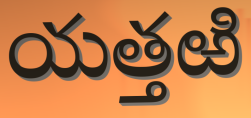
యత్తఱి